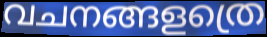
വചനങ്ങളത്രെ